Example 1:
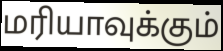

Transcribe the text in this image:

மரியாவுக்கும்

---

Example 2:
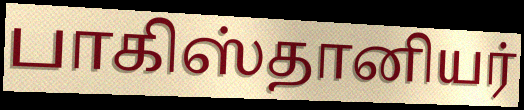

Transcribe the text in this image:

பாகிஸ்தானியர்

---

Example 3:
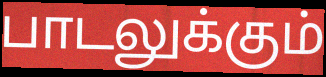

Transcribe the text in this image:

பாடலுக்கும்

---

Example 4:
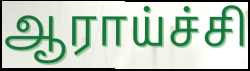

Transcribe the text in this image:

ஆராய்ச்சி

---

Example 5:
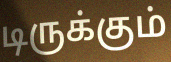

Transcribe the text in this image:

டிருக்கும்